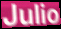
Julio